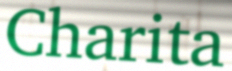
Charita